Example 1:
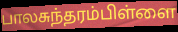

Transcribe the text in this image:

பாலசுந்தரம்பிள்ளை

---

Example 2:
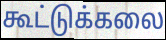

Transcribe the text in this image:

கூட்டுக்கலை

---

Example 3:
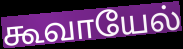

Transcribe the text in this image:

கூவாயேல்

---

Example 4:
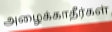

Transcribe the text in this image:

அழைக்காதீர்கள்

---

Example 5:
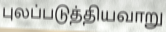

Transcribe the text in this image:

புலப்படுத்தியவாறு